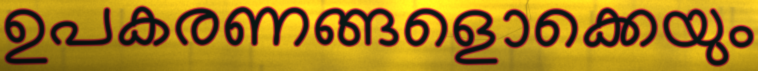
ഉപകരണങ്ങളൊക്കെയും